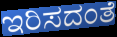
ಇರಿಸದಂತೆ